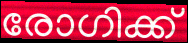
രോഗിക്ക്